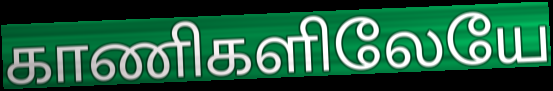
காணிகளிலேயே